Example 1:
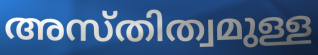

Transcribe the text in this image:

അസ്തിത്വമുള്ള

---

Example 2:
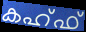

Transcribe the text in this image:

കഹ്ഫ്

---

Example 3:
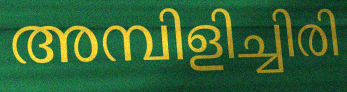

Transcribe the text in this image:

അമ്പിളിച്ചിരി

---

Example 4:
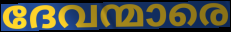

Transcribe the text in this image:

ദേവന്മാരെ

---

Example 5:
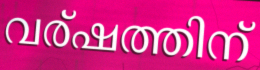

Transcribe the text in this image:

വര്ഷത്തിന്